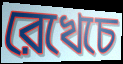
রেখেচে